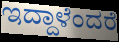
ಇದ್ದಾಳೆಂದರೆ